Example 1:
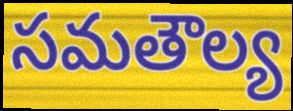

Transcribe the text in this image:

సమతౌల్య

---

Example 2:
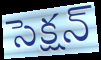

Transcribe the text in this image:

సెక్షన్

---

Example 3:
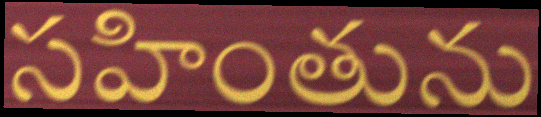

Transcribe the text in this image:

సహింతును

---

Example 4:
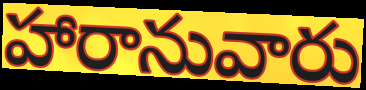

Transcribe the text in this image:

హారానువారు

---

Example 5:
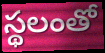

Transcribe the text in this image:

స్థలంతో